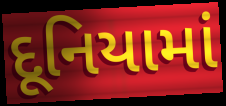
દૂનિયામાં